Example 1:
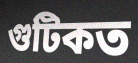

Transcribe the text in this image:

গুটিকত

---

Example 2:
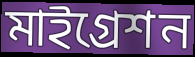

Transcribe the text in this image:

মাইগ্রেশন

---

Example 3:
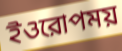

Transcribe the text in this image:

ইওরোপময়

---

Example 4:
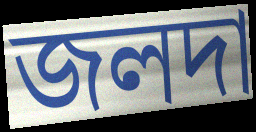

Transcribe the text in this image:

জলদা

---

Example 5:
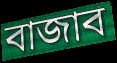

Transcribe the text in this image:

বাজাব